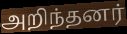
அறிந்தனர்